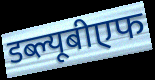
डब्ल्यूबीएफ